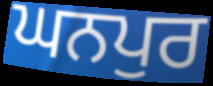
ਘਨਪੁਰ